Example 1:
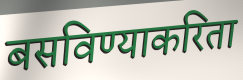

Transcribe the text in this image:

बसविण्याकरिता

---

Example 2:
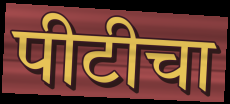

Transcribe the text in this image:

पीटीचा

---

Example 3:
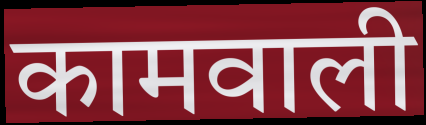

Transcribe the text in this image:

कामवाली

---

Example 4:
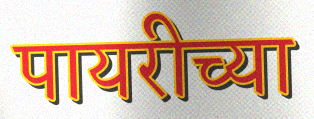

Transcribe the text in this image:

पायरीच्या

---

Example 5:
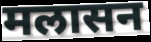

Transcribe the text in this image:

मलासन